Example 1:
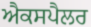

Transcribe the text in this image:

ਐਕਸਪੈਲਰ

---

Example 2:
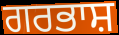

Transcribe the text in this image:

ਗਰਭਾਸ਼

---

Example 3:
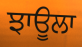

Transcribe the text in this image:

ਝਾਊਲਾ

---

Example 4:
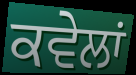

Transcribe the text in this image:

ਕਵੇਲਾਂ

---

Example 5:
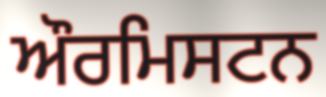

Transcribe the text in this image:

ਔਰਮਿਸਟਨ